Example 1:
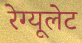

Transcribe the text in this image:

रेग्यूलेट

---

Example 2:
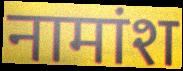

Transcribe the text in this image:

नामांश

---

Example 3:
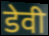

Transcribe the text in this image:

डेवी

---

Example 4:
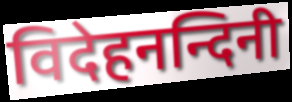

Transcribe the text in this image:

विदेहनन्दिनी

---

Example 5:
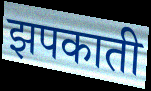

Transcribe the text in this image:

झपकाती